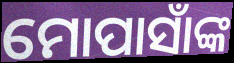
ମୋପାସାଁଙ୍କ